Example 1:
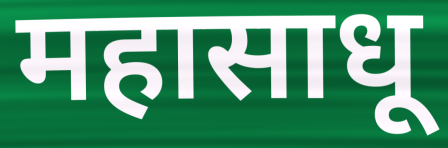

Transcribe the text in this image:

महासाधू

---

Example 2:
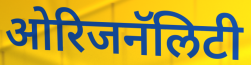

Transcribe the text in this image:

ओरिजनॅलिटी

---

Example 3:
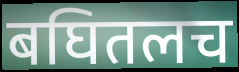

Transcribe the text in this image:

बघितलच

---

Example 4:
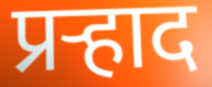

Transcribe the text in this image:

प्रर्‍हाद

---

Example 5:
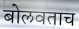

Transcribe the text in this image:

बोलवताच